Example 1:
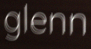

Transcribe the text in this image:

glenn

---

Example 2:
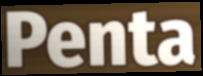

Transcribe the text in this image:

Penta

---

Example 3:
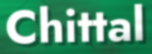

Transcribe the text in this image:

Chittal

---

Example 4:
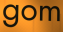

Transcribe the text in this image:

gom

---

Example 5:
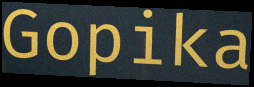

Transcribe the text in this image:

Gopika